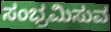
ಸಂಭ್ರಮಿಸುವ